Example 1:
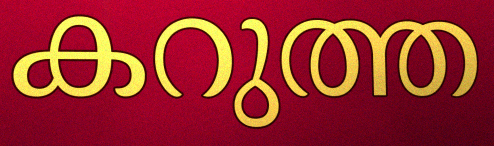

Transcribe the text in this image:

കറുത്ത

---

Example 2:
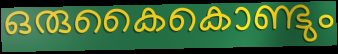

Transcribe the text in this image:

ഒരുകൈകൊണ്ടും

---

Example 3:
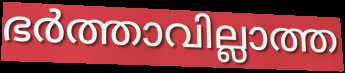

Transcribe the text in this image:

ഭർത്താവില്ലാത്ത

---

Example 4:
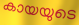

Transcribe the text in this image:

കായയുടെ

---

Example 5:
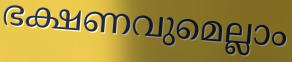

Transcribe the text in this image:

ഭക്ഷണവുമെല്ലാം